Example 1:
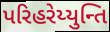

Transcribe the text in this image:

પરિહરેય્યુન્તિ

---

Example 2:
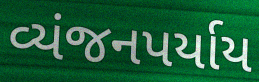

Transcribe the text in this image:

વ્યંજનપર્યાય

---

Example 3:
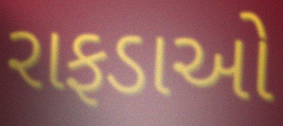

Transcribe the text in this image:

રાફડાઓ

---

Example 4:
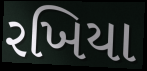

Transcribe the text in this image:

રખિયા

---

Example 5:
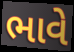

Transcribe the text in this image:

ભાવે